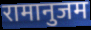
रामानुजम